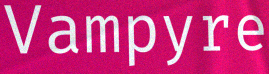
Vampyre